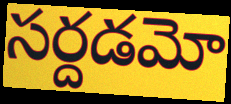
సర్దడమో